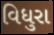
વિધુરા